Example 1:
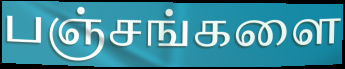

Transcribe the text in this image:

பஞ்சங்களை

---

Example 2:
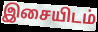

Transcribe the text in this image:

இசையிடம்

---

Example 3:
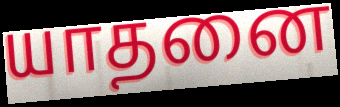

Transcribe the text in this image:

யாதனை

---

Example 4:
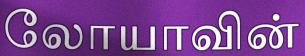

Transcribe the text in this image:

லோயாவின்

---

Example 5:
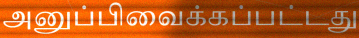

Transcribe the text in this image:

அனுப்பிவைக்கப்பட்டது